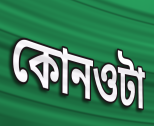
কোনওটা